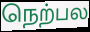
நெற்பல